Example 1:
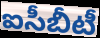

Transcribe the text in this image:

ఐసీబీటీ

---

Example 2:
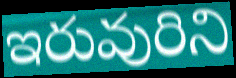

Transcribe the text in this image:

ఇరువురిని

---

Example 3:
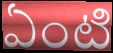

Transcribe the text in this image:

ఏంటి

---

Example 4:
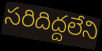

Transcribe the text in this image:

సరిదిద్దలేని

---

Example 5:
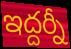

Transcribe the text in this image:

ఇద్దర్నీ